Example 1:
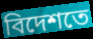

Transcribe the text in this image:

বিদেশতে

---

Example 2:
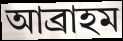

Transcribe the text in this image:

আব্ৰাহম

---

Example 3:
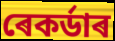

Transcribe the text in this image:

ৰেকৰ্ডাৰ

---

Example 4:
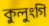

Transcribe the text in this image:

কুলুংগি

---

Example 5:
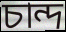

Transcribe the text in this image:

চান্দ